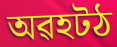
অৱহটঠ